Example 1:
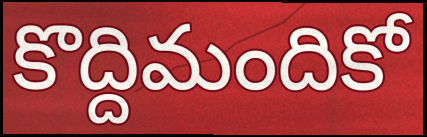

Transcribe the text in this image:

కొద్దిమందికో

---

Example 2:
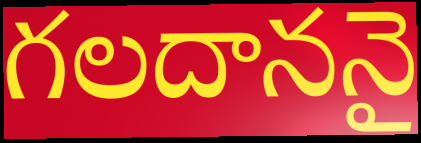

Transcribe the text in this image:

గలదాననై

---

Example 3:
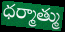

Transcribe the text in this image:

ధర్మాత్ము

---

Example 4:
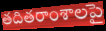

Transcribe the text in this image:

తదితరాంశాలపై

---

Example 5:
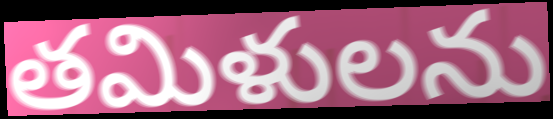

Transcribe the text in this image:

తమిళులను